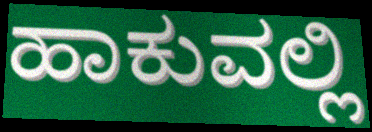
ಹಾಕುವಲ್ಲಿ